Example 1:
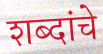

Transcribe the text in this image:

शब्दांचे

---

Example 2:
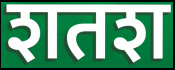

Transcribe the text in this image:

शतश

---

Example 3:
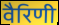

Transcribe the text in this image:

वैरिणी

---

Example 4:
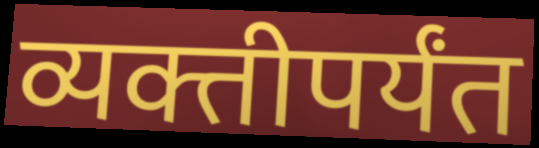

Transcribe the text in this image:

व्यक्तीपर्यंत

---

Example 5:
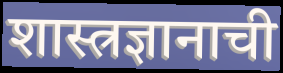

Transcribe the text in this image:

शास्त्रज्ञानाची